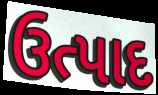
ઉત્પાદ